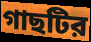
গাছটির